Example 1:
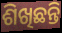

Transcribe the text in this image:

ଶିଖିଛନ୍ତି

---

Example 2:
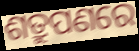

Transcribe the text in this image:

ଶତ୍ରୁପଣରେ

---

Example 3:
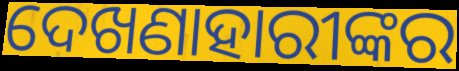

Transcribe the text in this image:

ଦେଖଣାହାରୀଙ୍କର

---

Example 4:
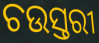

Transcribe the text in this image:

ଚଉସ୍ତରୀ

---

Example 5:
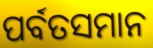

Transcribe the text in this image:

ପର୍ବତସମାନ